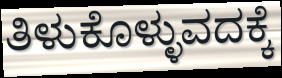
ತಿಳುಕೊಳ್ಳುವದಕ್ಕೆ